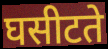
घसीटते